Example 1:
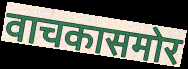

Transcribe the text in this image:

वाचकासमोर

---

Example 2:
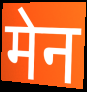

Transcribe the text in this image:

मेन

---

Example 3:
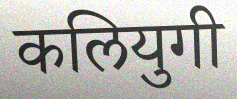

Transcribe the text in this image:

कलियुगी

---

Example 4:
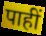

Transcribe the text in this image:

पाहीं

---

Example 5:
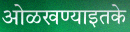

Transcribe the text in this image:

ओळखण्याइतके